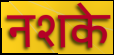
नशके